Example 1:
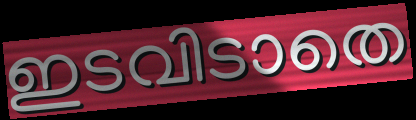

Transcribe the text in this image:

ഇടവിടാതെ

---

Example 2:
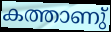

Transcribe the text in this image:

കത്താണു്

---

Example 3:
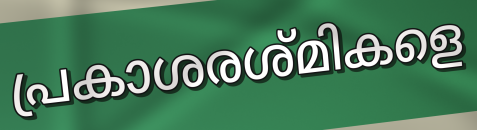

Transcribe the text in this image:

പ്രകാശരശ്മികളെ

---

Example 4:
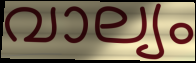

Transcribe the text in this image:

വാല്യം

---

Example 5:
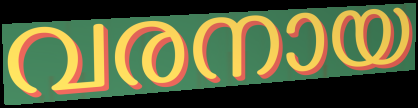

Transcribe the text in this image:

വരനായ